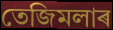
তেজিমলাৰ